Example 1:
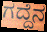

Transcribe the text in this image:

ಗದ್ದೆನ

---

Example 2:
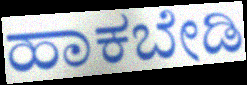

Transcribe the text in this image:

ಹಾಕಬೇಡಿ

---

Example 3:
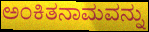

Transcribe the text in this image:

ಅಂಕಿತನಾಮವನ್ನು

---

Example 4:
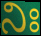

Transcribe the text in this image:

ನಿಃ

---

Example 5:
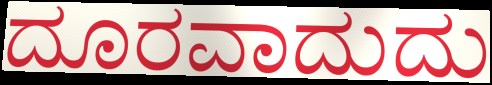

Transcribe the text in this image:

ದೂರವಾದುದು